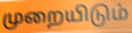
முறையிடும்